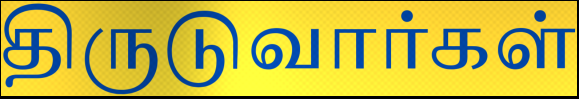
திருடுவார்கள்